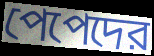
পেপেদের